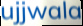
ujjwala